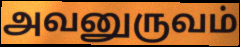
அவனுருவம்